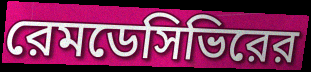
রেমডেসিভিরের